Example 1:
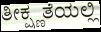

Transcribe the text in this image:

ತೀಕ್ಷ್ಣತೆಯಲ್ಲಿ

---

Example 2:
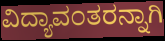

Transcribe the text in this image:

ವಿದ್ಯಾವಂತರನ್ನಾಗಿ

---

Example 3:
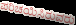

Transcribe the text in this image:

ಪರಿಚಯಿಸಿರುವರು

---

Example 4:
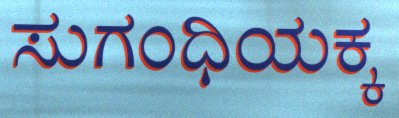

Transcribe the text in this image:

ಸುಗಂಧಿಯಕ್ಕ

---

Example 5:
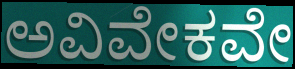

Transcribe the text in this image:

ಅವಿವೇಕವೇ